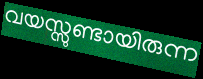
വയസ്സുണ്ടായിരുന്ന